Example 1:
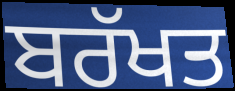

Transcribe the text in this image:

ਬਰੱਖਤ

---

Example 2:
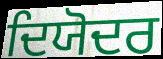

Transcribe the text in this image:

ਦਿਯੋਦਰ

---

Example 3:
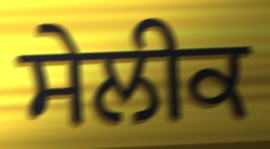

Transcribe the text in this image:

ਸੇਲੀਕ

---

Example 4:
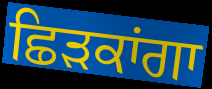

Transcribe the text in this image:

ਛਿੜਕਾਂਗਾ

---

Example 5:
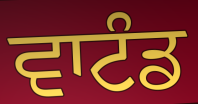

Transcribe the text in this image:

ਵਾਟੰਡ